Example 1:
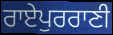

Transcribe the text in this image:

ਰਾਏਪੁਰਰਾਣੀ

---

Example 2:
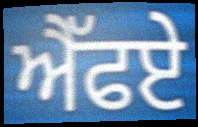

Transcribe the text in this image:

ਐੱਫਏ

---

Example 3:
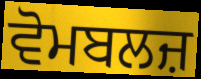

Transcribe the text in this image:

ਵੋਮਬਲਜ਼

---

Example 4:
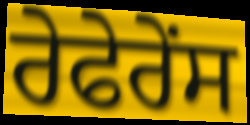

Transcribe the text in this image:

ਰੇਫੇਰੇਂਸ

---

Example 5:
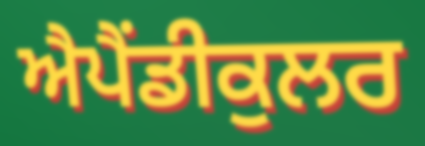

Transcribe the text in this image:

ਐਪੈਂਡੀਕੁਲਰ